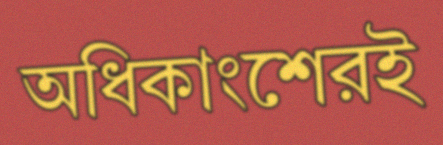
অধিকাংশেরই